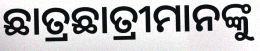
ଛାତ୍ରଛାତ୍ରୀମାନଙ୍କୁ